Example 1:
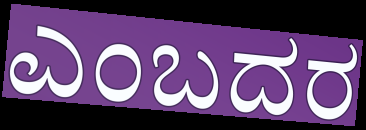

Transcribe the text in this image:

ಎಂಬದರ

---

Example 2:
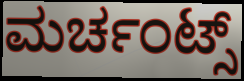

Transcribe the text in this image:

ಮರ್ಚಂಟ್ಸ್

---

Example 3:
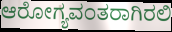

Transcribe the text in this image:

ಆರೋಗ್ಯವಂತರಾಗಿರಲಿ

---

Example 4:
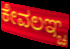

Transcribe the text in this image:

ಕೇವಲಞ್ಚ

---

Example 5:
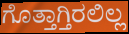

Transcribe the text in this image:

ಗೊತ್ತಾಗ್ತಿರಲಿಲ್ಲ